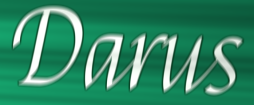
Darus